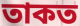
তাকত